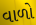
વાળો